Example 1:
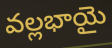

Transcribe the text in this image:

వల్లభాయై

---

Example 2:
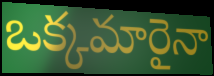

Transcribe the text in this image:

ఒక్కమారైనా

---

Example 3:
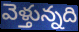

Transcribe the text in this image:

వెళ్తున్నది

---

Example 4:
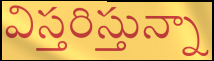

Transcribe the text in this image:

విస్తరిస్తున్నా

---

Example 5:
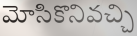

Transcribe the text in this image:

మోసికొనివచ్చి